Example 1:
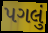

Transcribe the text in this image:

પગલું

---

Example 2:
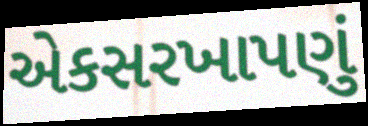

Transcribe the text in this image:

એકસરખાપણું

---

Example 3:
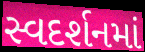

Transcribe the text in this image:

સ્વદર્શનમાં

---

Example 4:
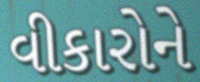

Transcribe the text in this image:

વીકારોને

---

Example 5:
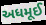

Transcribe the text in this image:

અધમૂઈ